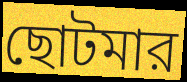
ছোটমার